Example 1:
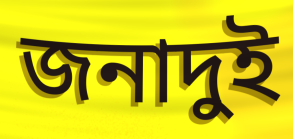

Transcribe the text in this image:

জনাদুই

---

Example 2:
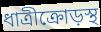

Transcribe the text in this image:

ধাত্রীক্রোড়স্থ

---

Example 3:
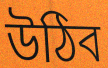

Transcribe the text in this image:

উঠিব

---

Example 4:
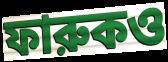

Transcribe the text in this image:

ফারুকও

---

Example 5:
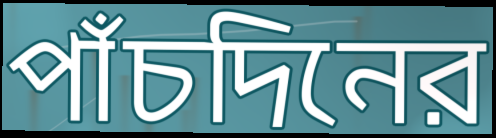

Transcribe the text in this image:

পাঁচদিনের